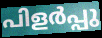
പിളർപ്പു